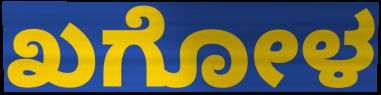
ಖಗೋಳ